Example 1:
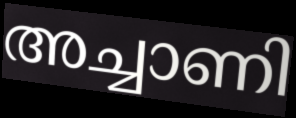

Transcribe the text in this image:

അച്ചാണി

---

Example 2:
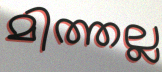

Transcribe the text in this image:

മിത്തല്ല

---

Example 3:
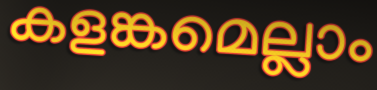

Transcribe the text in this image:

കളങ്കമെല്ലാം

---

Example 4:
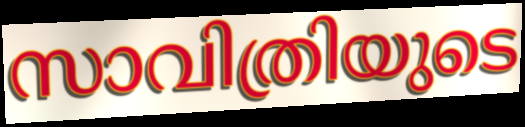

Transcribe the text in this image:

സാവിത്രിയുടെ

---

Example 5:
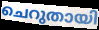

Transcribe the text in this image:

ചെറുതായി